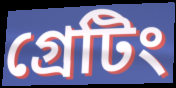
গ্রেটিং